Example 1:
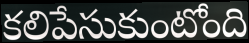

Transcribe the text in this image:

కలిపేసుకుంటోంది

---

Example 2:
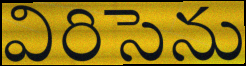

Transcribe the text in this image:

విరిసెను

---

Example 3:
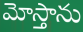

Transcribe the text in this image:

మోస్తాను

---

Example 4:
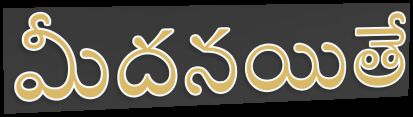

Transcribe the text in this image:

మీదనయితే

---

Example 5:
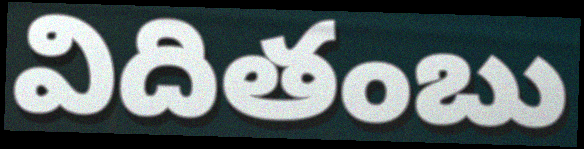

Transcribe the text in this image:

విదితంబు